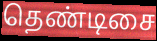
தெண்டிசை